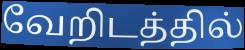
வேறிடத்தில்